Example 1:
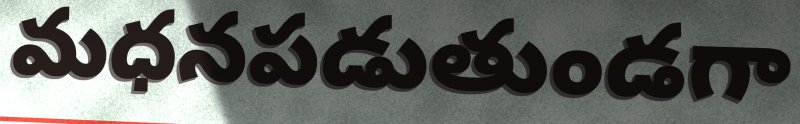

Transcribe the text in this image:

మధనపడుతుండగా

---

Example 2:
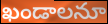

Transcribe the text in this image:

ఖండాలనూ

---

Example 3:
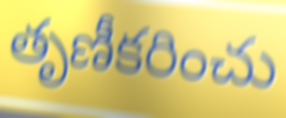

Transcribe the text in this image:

తృణీకరించు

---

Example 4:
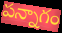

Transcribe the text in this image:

పన్నాగం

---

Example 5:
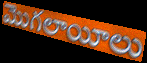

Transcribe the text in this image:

మొగలాయీలు